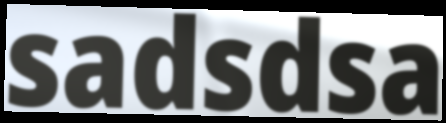
sadsdsa